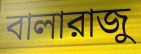
বালারাজু